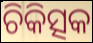
ଚିକିତ୍ସକ